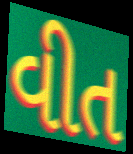
વીત